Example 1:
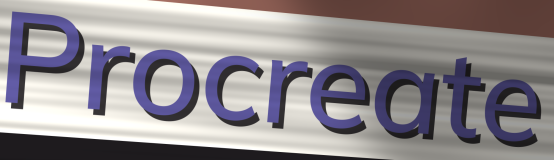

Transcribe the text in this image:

Procreate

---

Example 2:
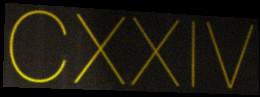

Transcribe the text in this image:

CXXIV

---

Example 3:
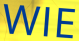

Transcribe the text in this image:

WIE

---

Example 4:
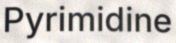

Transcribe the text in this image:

Pyrimidine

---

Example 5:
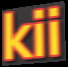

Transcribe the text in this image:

kii